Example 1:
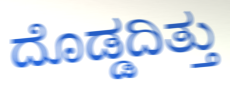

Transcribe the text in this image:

ದೊಡ್ಡದಿತ್ತು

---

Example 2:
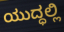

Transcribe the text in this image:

ಯುದ್ಧಲ್ಲಿ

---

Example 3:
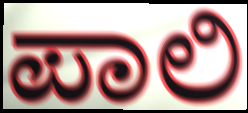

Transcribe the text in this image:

ಪಾಲಿ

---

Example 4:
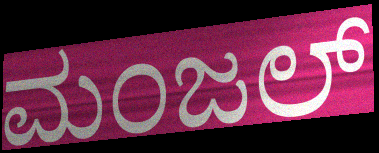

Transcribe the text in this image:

ಮಂಜಲ್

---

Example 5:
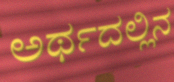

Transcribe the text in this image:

ಅರ್ಥದಲ್ಲಿನ